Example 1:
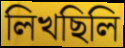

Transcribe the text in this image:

লিখছিলি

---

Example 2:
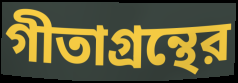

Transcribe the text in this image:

গীতাগ্রন্থের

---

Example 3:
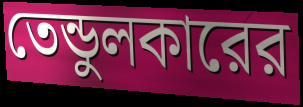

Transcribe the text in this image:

তেন্ডুলকারের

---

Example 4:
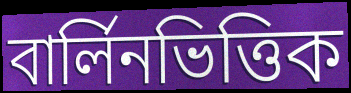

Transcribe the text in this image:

বার্লিনভিত্তিক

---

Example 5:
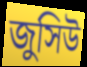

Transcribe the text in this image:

জুসিউ